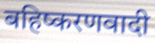
बहिष्करणवादी